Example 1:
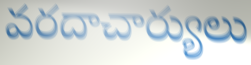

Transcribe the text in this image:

వరదాచార్యులు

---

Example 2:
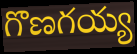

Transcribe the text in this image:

గొణగయ్య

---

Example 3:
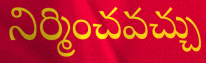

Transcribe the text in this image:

నిర్మించవచ్చు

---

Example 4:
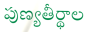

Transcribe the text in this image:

పుణ్యతీర్థాల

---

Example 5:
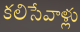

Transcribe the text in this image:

కలిసేవాళ్లు